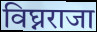
विघ्नराजा